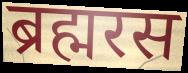
ब्रह्मरस